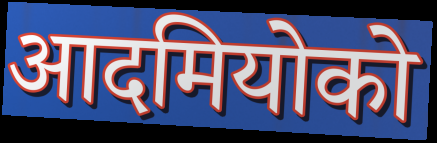
आदमियोको